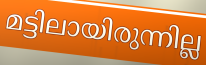
മട്ടിലായിരുന്നില്ല